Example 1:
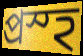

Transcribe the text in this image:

প্রস্হ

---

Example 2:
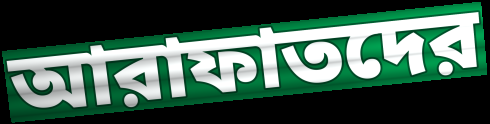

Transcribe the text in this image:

আরাফাতদের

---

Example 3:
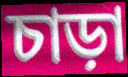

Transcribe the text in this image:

চাড়া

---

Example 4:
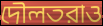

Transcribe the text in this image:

দৌলতরাও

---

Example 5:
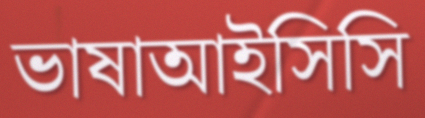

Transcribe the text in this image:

ভাষাআইসিসি